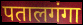
पतालगंगा